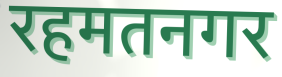
रहमतनगर